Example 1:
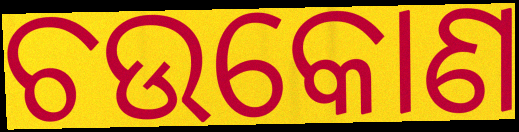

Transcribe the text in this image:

ଚଉକୋଣ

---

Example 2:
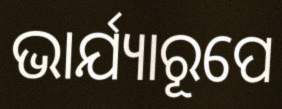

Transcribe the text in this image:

ଭାର୍ଯ୍ୟାରୂପେ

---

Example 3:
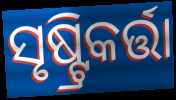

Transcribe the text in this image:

ସୃଷ୍ଟ୍ରିକର୍ତ୍ତା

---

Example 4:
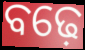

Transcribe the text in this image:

ବଢ଼େ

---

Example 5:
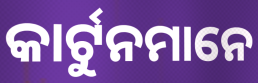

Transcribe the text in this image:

କାର୍ଟୁନମାନେ